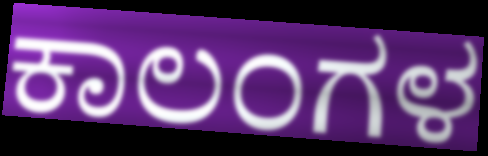
ಕಾಲಂಗಳ